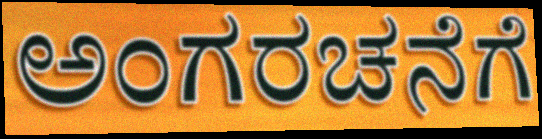
ಅಂಗರಚನೆಗೆ